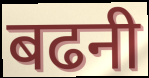
बढनी